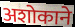
अशोकाने